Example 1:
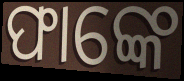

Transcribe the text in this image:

ଫାଙ୍କେ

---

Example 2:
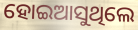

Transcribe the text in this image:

ହୋଇଆସୁଥିଲେ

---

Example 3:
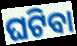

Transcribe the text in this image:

ଘଟିବା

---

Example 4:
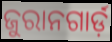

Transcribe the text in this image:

ଜୁରାନଗାର୍ଡ଼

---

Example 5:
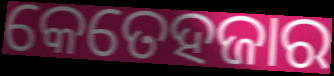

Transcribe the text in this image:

କେତେହଜାର